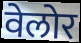
वेलोर